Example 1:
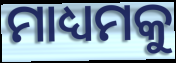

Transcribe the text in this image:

ମାଧ୍ୟମକୁ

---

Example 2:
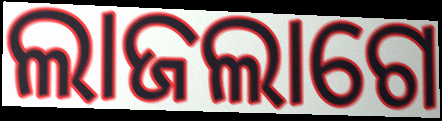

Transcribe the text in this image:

ଲାଜଲାଗେ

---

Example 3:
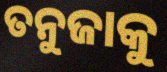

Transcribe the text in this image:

ତନୁଜାକୁ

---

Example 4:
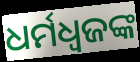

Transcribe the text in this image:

ଧର୍ମଧ୍ୱଜଙ୍କ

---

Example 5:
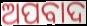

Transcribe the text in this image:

ଅପବାଦ